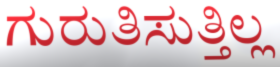
ಗುರುತಿಸುತ್ತಿಲ್ಲ